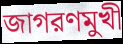
জাগরণমুখী